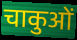
चाकुओं